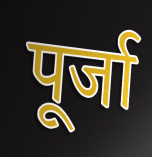
पूर्जा